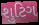
શુટિગ